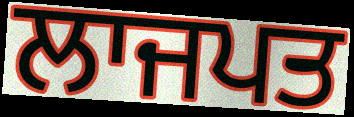
ਲਾਜਪਤ